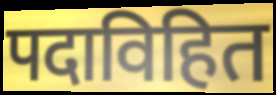
पदाविहित